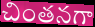
చింతనగా